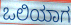
ಒಲಿಯಾಗ